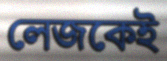
লেজকেই